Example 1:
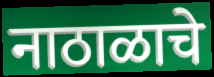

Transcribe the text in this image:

नाठाळाचे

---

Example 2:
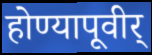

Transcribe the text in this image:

होण्यापूवीर्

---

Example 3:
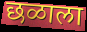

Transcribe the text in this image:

छळाला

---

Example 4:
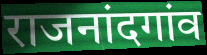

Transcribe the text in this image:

राजनांदगांव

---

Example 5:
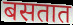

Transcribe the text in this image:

बसतात